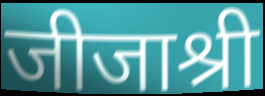
जीजाश्री